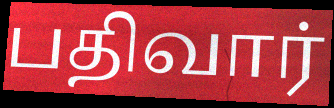
பதிவார்